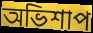
অভিশাপ